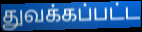
துவக்கப்பட்ட